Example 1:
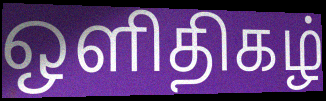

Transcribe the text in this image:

ஒளிதிகழ்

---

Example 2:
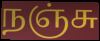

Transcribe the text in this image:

நஞ்சு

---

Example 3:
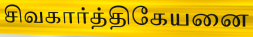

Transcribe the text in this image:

சிவகார்த்திகேயனை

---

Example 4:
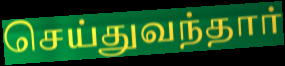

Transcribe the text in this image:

செய்துவந்தார்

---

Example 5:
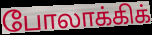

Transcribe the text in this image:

போலாக்கிக்